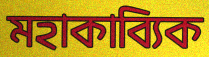
মহাকাব্যিক